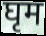
घृम